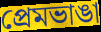
প্রেমভাঙা